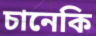
চানেকি